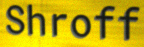
Shroff